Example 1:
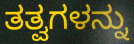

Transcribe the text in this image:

ತತ್ವಗಳನ್ನು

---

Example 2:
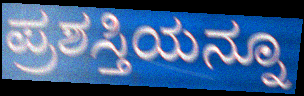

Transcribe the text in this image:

ಪ್ರಶಸ್ತಿಯನ್ನೂ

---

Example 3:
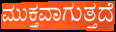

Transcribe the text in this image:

ಮುಕ್ತವಾಗುತ್ತದೆ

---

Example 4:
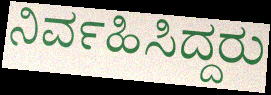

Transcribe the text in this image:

ನಿರ್ವಹಿಸಿದ್ದರು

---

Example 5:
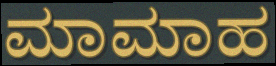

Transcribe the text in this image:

ಮಾಮಾಹ